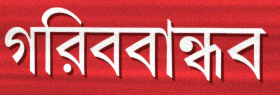
গরিববান্ধব